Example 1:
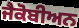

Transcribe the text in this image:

ਜੈਕੋਬੀਅਨ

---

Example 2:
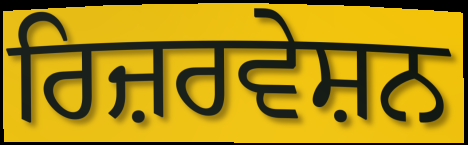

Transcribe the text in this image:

ਰਿਜ਼ਰਵੇਸ਼ਨ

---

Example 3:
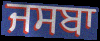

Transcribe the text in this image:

ਜਸਬਾ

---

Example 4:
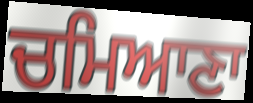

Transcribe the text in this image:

ਚਮਿਆਣਾ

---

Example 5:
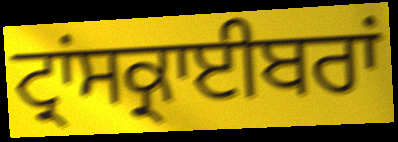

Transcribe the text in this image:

ਟ੍ਰਾਂਸਕ੍ਰਾਈਬਰਾਂ